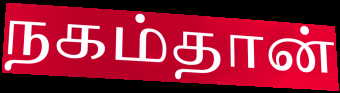
நகம்தான்